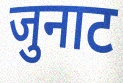
जुनाट